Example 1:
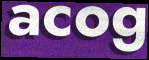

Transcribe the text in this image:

acog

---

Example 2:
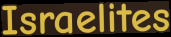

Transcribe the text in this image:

Israelites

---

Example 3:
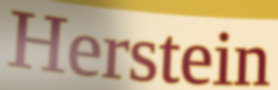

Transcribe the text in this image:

Herstein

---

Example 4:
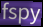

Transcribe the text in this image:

fspy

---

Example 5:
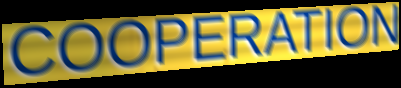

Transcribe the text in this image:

COOPERATION